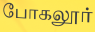
போகலூர்